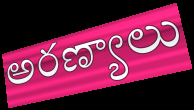
అరణ్యాలు